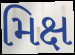
મિક્ષ